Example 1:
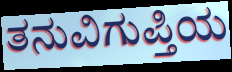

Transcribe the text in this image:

ತನುವಿಗುಪ್ತಿಯ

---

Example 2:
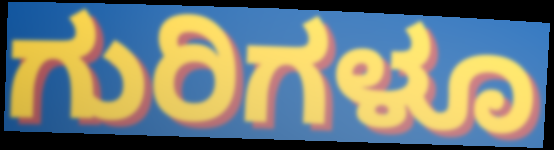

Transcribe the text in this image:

ಗುರಿಗಳೂ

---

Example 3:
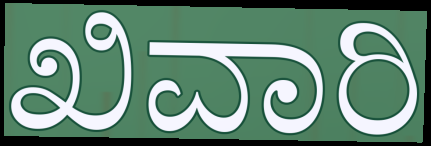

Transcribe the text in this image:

ಖಿವಾರಿ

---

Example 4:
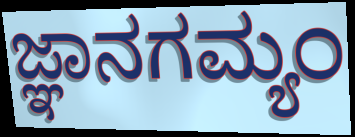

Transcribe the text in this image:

ಜ್ಞಾನಗಮ್ಯಂ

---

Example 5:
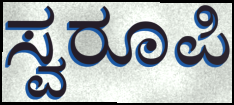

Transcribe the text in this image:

ಸ್ವರೂಪಿ